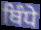
ਥਿੰਧੇ